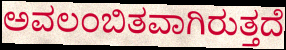
ಅವಲಂಬಿತವಾಗಿರುತ್ತದೆ